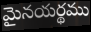
మైనయర్థము